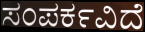
ಸಂಪರ್ಕವಿದೆ